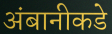
अंबानीकडे